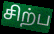
சிற்ப